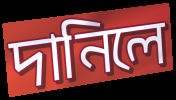
দানিলে